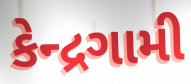
કેન્દ્રગામી